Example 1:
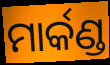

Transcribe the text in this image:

ମାର୍କଣ୍ଡ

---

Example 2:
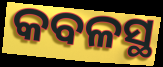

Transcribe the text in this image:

କବଳସ୍ଥ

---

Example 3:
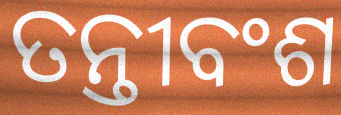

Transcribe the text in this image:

ତନ୍ତୀବଂଶ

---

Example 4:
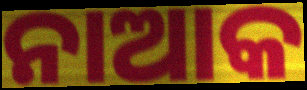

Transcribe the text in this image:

ନାଆକ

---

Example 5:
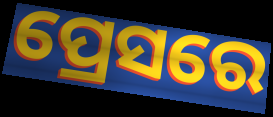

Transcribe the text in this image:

ପ୍ରେସରେ